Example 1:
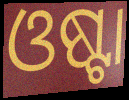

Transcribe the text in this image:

ଓଷ୍ଟା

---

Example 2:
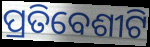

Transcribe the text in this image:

ପ୍ରତିବେଶୀଟି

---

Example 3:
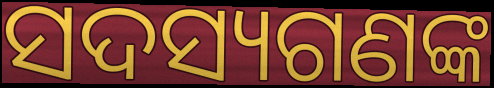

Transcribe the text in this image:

ସଦସ୍ୟଗଣଙ୍କ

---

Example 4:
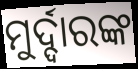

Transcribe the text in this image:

ମୁର୍ଦ୍ଦାରଙ୍କ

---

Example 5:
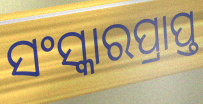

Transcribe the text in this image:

ସଂସ୍କାରପ୍ରାପ୍ତ